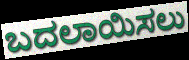
ಬದಲಾಯಿಸಲು